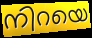
നിറയെ